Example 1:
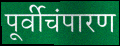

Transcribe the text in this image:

पूर्वीचंपारण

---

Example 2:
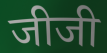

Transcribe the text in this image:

जीजी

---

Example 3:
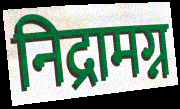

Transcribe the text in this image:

निद्रामग्न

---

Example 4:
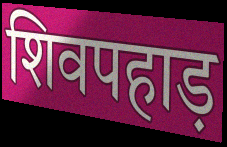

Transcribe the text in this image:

शिवपहाड़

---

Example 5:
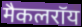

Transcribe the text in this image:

मैकलरॉय